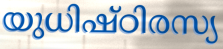
യുധിഷ്ഠിരസ്യ